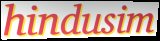
hindusim